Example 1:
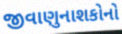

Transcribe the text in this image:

જીવાણુનાશકોનો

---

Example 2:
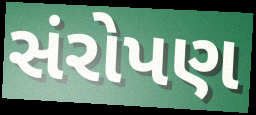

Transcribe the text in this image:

સંરોપણ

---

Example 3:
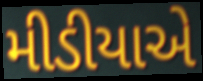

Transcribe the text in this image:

મીડીયાએ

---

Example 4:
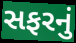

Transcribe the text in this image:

સફરનું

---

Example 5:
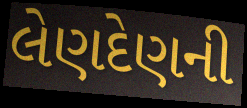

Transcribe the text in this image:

લેણદેણની